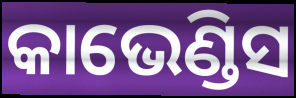
କାଭେଣ୍ଡିସ